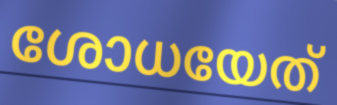
ശോധയേത്